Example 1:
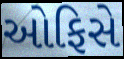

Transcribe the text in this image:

ઓફિસે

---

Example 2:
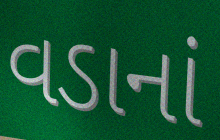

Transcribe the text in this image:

વડાનાં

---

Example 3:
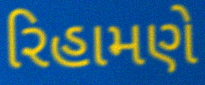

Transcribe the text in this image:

રિહામણે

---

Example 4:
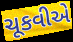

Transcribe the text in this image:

ચૂકવીએ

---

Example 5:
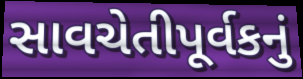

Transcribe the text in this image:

સાવચેતીપૂર્વકનું